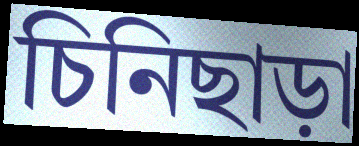
চিনিছাড়া